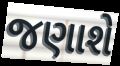
જણાશે